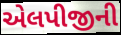
એલપીજીની